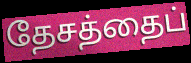
தேசத்தைப்